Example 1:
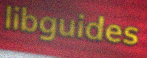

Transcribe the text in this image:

libguides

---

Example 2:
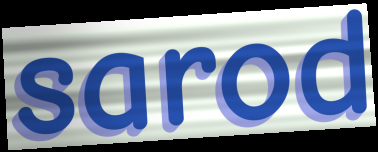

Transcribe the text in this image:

sarod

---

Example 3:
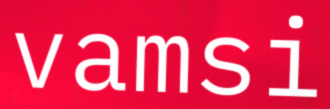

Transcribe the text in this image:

vamsi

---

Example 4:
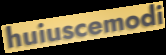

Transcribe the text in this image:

huiuscemodi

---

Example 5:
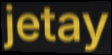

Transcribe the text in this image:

jetay